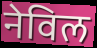
नेविल